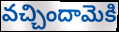
వచ్చిందామెకి